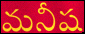
మనీష